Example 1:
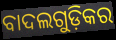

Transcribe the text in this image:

ବାଦଲଗୁଡ଼ିକର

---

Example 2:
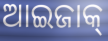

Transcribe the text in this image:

ଆଇଜାକ୍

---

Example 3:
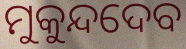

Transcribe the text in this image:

ମୁକୁନ୍ଦଦେବ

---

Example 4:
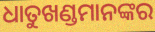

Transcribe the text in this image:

ଧାତୁଖଣ୍ଡମାନଙ୍କର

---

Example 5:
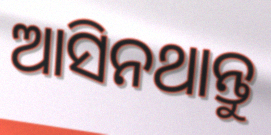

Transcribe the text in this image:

ଆସିନଥାନ୍ତୁ